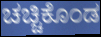
ಚಚ್ಚಿಕೊಂಡ